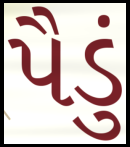
પૈડું